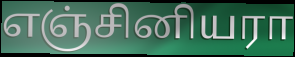
எஞ்சினியரா